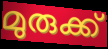
മുരുക്ക്